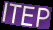
ITEP